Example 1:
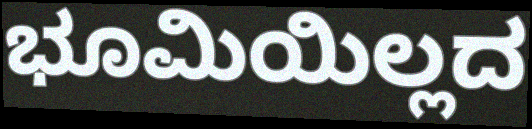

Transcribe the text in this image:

ಭೂಮಿಯಿಲ್ಲದ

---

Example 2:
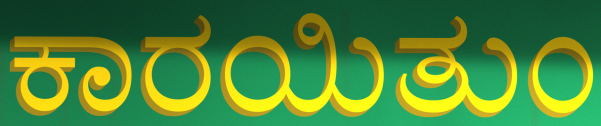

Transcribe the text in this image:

ಕಾರಯಿತುಂ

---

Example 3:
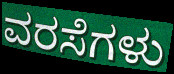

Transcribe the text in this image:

ವರಸೆಗಳು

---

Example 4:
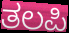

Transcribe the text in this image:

ತಲಪಿ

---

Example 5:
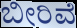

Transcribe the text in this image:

ಬೀರಿವೆ